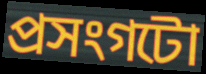
প্ৰসংগটো